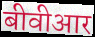
बीवीआर